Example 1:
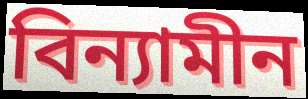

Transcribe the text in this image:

বিন্যামীন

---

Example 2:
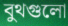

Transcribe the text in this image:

বুথগুলো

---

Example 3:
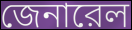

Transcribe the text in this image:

জেনারেল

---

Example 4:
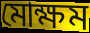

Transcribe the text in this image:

মোক্ষম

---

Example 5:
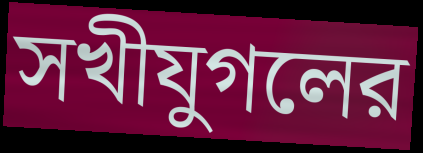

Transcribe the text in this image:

সখীযুগলের